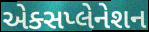
એક્સપ્લેનેશન